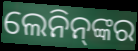
ଲେନିନ୍‌ଙ୍କର